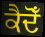
ਕੈਦੋਁ